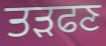
ਤੜਫਣ